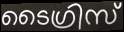
ടൈഗ്രിസ്